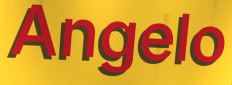
Angelo